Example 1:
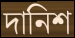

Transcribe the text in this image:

দানিশ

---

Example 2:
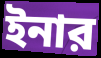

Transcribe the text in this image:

ইনার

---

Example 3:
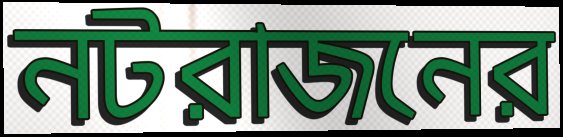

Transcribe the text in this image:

নটরাজনের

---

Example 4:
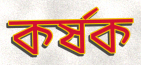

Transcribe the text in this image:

কর্ষক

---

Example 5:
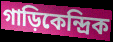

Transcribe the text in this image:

গাড়িকেন্দ্রিক